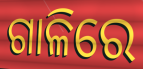
ଗାଳିରେ